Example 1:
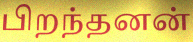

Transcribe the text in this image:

பிறந்தனன்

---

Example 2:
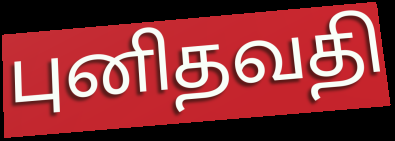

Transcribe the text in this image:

புனிதவதி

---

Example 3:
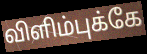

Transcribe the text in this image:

விளிம்புக்கே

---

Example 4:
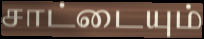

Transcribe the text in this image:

சாட்டையும்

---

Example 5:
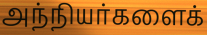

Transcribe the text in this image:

அந்நியர்களைக்